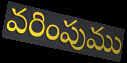
వరింపుము